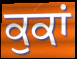
ਕੁਕਾਂ